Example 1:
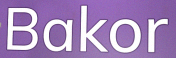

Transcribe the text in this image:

Bakor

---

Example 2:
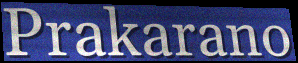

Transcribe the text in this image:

Prakarano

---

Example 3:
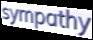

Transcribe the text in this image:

sympathy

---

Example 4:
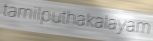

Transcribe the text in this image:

tamilputhakalayam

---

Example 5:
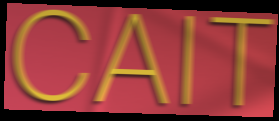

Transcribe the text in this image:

CAIT